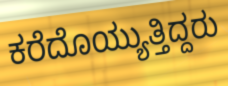
ಕರೆದೊಯ್ಯುತ್ತಿದ್ದರು